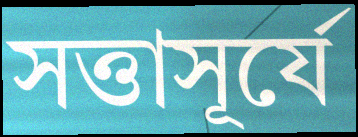
সত্তাসূর্যে